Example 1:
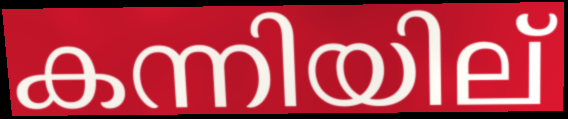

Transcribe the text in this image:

കന്നിയില്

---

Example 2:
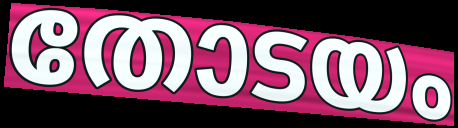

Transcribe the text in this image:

തോടയം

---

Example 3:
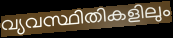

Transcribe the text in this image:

വ്യവസ്ഥിതികളിലും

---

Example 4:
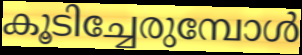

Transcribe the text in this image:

കൂടിച്ചേരുമ്പോൾ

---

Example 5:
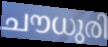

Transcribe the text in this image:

ചൗധുരി